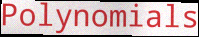
Polynomials